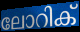
ലോറിക്